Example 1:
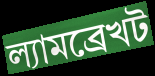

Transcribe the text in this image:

ল্যামব্রেখট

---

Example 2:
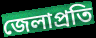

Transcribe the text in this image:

জেলাপ্রতি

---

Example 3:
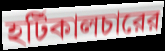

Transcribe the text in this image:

হর্টিকালচারের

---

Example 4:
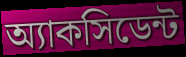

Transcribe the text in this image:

অ্যাকসিডেন্ট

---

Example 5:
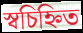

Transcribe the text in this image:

স্বচিহ্নিত